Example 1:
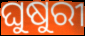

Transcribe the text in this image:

ଘୁଷୁରୀ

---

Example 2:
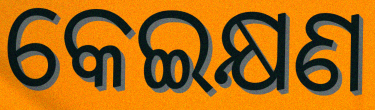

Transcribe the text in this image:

କେଇକ୍ଷଣ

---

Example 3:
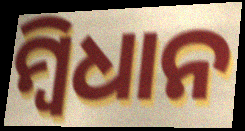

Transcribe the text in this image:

ମ୍ବିଧାନ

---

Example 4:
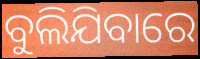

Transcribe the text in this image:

ବୁଲିଯିବାରେ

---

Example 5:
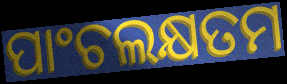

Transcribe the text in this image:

ପାଂଚଲକ୍ଷତମ